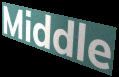
Middle